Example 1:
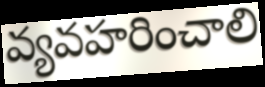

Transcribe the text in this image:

వ్యవహరించాలి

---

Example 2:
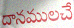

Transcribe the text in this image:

దానములచే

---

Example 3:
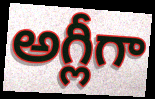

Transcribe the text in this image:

అగ్లీగా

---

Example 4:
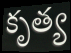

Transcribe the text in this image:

కృత్య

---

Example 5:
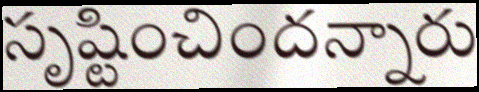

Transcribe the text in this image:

సృష్టించిందన్నారు